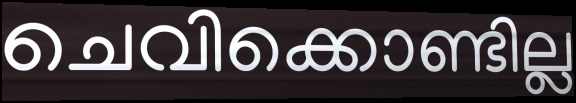
ചെവിക്കൊണ്ടില്ല